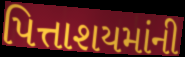
પિત્તાશયમાંની